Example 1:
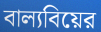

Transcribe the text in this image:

বাল্যবিয়ের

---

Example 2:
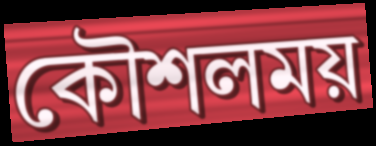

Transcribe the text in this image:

কৌশলময়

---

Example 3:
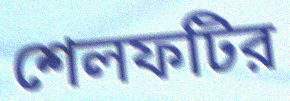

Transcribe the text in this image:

শেলফটির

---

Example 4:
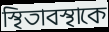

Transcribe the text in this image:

স্থিতাবস্থাকে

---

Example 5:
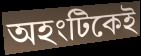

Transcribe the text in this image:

অহংটিকেই